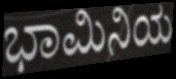
ಭಾಮಿನಿಯ